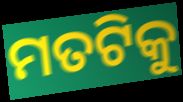
ମତଟିକୁ